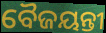
ବୈଜୟନ୍ତୀ